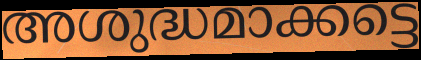
അശുദ്ധമാക്കട്ടെ